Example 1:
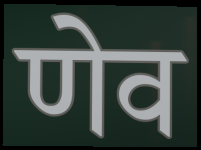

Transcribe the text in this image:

णेव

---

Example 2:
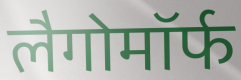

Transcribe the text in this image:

लैगोमॉर्फ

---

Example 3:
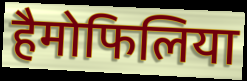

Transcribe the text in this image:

हैमोफिलिया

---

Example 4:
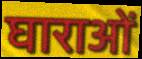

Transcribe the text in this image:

घाराओं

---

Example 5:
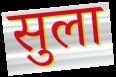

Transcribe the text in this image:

सुला